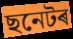
ছনেটৰ